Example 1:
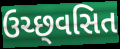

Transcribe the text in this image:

ઉચ્છ્‌વસિત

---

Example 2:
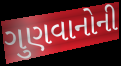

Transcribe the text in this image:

ગુણવાનોની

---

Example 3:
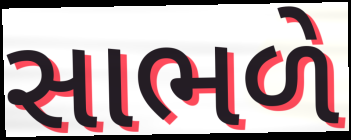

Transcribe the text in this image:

સાભળે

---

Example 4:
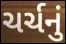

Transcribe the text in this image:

ચર્ચનું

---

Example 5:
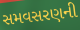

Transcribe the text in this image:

સમવસરણની